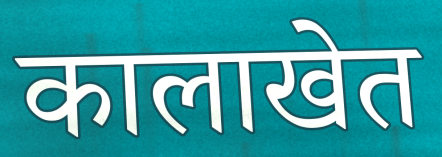
कालाखेत